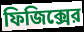
ফিজিক্সের